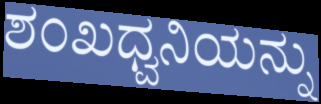
ಶಂಖಧ್ವನಿಯನ್ನು